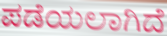
ಪಡೆಯಲಾಗಿದೆ